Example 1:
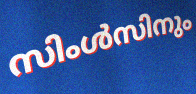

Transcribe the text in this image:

സിംൾസിനും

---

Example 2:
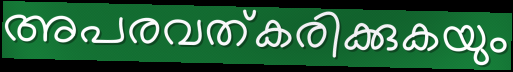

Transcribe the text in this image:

അപരവത്കരിക്കുകയും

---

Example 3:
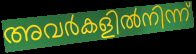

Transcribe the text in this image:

അവർകളിൽനിന്ന്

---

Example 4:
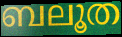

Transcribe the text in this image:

ബലൂത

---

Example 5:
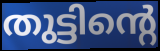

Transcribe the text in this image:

തുട്ടിന്റെ